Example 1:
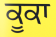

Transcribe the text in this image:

ਕੂਕਾ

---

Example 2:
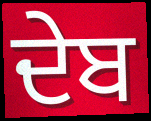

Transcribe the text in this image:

ਦੇਬ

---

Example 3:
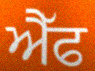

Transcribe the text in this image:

ਐੈੱਫ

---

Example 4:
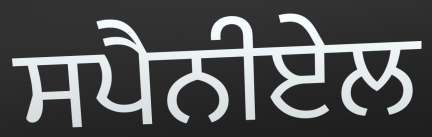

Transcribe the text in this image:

ਸਪੈਨੀਏਲ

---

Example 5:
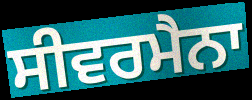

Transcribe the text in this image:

ਸੀਵਰਮੈਨਾ